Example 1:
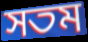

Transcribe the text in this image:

সতম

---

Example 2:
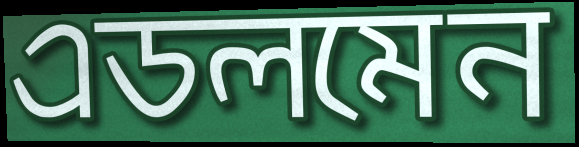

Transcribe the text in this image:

এডলমেন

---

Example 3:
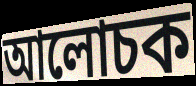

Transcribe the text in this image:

আলোচক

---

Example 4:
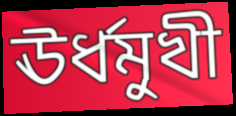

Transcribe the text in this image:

ঊৰ্ধমুখী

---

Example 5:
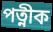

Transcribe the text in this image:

পত্নীক